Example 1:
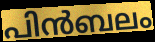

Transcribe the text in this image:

പിൻബലം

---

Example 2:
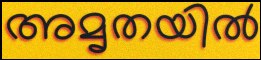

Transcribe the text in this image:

അമൃതയിൽ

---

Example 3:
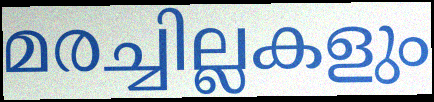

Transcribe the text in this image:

മരച്ചില്ലകളും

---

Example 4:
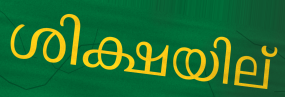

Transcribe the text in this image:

ശിക്ഷയില്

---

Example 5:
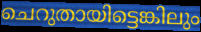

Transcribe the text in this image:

ചെറുതായിട്ടെങ്കിലും